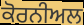
ਕੋਰਨੀਅਲ